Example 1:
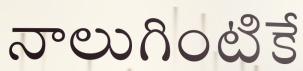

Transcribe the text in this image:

నాలుగింటికే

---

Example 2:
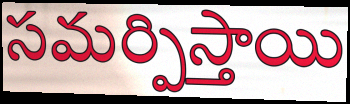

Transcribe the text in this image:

సమర్పిస్తాయి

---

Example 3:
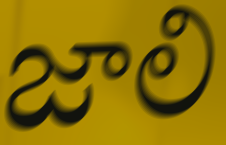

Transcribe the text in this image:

జాలి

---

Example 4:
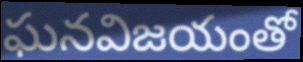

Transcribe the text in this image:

ఘనవిజయంతో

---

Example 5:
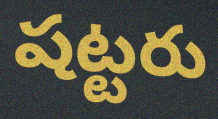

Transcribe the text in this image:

షట్టరు